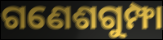
ଗଣେଶଗୁମ୍ଫା